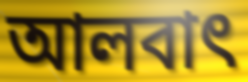
আলবাৎ